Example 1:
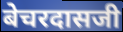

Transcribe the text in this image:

बेचरदासजी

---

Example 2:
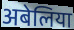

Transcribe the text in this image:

अबेलिया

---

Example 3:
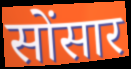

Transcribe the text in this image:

सोंसार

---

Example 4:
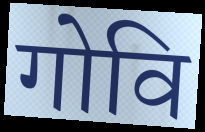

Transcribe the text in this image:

गोवि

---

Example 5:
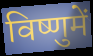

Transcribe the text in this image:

विष्णुमें